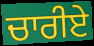
ਚਾਰੀਏ